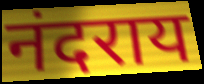
नंदराय